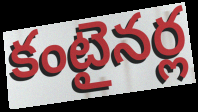
కంటైనర్ల